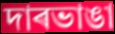
দাৰভাঙা